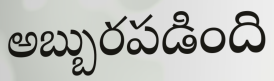
అబ్బురపడింది